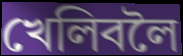
খেলিবলৈ